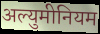
अल्युमीनियम